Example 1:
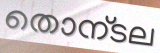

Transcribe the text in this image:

തൊന്ടല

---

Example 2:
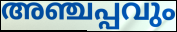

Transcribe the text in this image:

അഞ്ചപ്പവും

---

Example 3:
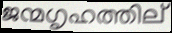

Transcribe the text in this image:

ജന്മഗൃഹത്തില്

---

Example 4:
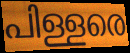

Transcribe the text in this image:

പിള്ളരെ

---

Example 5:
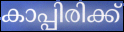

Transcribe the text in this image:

കാപ്പിരിക്ക്